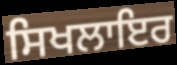
ਸਿਖਲਾਇਰ